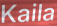
Kaila